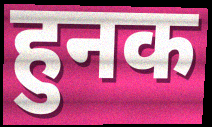
हुनक